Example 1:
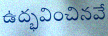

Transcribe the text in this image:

ఉద్భవించినవే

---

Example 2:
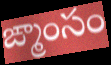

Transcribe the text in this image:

ఙ్మాంసం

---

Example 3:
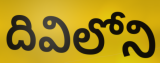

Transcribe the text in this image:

దివిలోని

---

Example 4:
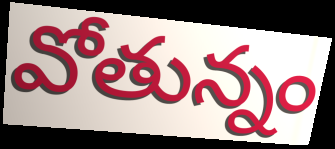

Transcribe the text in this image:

వోతున్నం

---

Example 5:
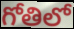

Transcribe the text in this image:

గోతిలో